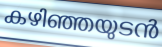
കഴിഞ്ഞയുടൻ